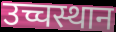
उच्चस्थान